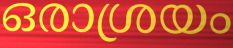
ഒരാശ്രയം